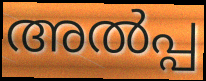
അൽപ്പ